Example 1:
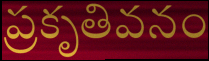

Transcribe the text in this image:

ప్రకృతివనం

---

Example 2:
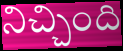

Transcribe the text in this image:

నిచ్చింది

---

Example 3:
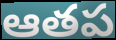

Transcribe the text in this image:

ఆతప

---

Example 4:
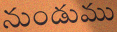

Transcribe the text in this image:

నుండుము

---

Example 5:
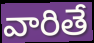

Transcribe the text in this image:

వారితే